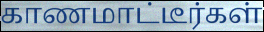
காணமாட்டீர்கள்